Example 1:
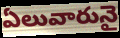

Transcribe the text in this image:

ఏలువారునై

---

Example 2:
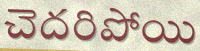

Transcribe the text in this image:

చెదరిపోయి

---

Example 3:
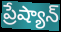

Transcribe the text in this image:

ప్రేష్యాన్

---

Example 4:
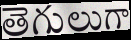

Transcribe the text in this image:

తెగులుగా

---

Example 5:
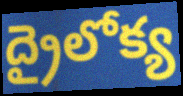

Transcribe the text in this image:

ద్రైలోక్య